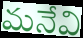
మనేవి